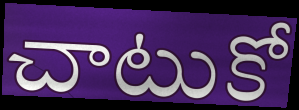
చాటుకో